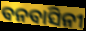
ବନବାସିନୀ